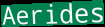
Aerides